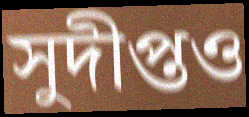
সুদীপ্তও